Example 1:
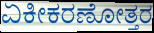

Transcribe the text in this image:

ಏಕೀಕರಣೋತ್ತರ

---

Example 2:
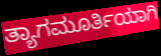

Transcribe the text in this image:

ತ್ಯಾಗಮೂರ್ತಿಯಾಗಿ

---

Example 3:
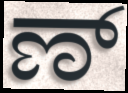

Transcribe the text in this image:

ಣ್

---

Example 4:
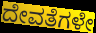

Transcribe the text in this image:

ದೇವತೆಗಳೇ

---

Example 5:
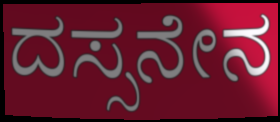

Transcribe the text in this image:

ದಸ್ಸನೇನ